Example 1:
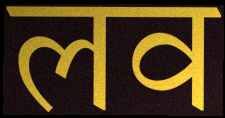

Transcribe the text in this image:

लव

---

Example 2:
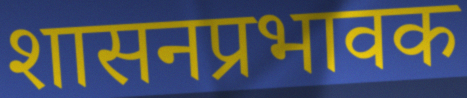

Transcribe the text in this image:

शासनप्रभावक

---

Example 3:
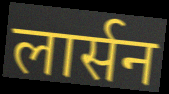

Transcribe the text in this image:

लार्सन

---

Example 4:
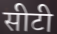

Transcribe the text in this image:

सीटी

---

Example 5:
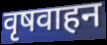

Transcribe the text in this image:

वृषवाहन